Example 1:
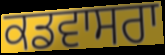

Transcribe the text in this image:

ਕਡਵਾਸਰਾ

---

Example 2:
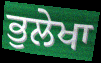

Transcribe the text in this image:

ਭੁਲੇਖਾ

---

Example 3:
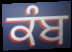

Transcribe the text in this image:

ਕੰਬ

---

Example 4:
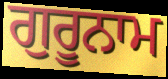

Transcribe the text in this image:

ਗੁਰੂਨਾਮ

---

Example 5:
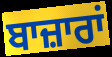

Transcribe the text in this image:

ਬਾਜ਼ਾਰਾਂ